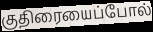
குதிரையைப்போல்